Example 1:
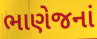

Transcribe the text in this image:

ભાણેજનાં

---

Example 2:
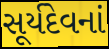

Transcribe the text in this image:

સૂર્યદેવનાં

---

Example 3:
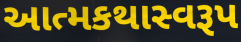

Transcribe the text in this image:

આત્મકથાસ્વરૂપ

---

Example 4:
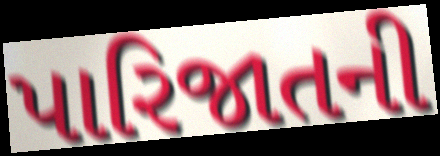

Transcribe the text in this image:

પારિજાતની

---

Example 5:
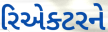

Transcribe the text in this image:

રિએક્ટરને